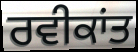
ਰਵੀਕਾਂਤ